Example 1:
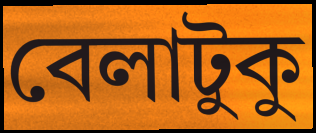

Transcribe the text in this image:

বেলাটুকু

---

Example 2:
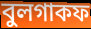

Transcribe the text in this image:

বুলগাকফ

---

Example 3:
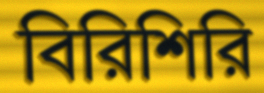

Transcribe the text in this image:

বিরিশিরি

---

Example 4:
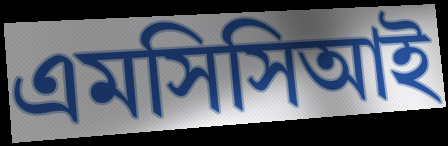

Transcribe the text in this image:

এমসিসিআই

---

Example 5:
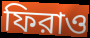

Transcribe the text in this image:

ফিরাও